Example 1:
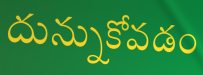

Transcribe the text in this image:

దున్నుకోవడం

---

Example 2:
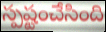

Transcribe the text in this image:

స్పష్టంచేసింది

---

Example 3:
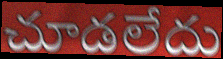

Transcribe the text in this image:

చూడలేదు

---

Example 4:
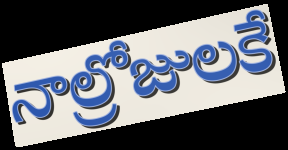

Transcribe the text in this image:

నాల్రోజులకే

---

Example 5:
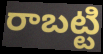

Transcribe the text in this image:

రాబట్టి